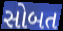
સોબત